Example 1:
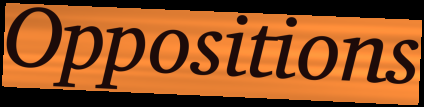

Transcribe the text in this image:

Oppositions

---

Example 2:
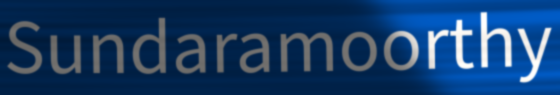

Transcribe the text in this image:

Sundaramoorthy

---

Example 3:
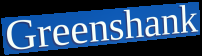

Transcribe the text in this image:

Greenshank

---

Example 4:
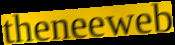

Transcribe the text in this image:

theneeweb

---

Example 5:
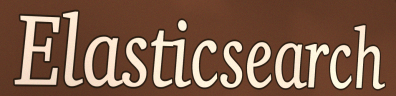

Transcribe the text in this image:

Elasticsearch